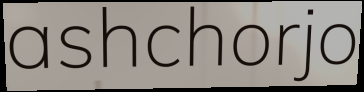
ashchorjo